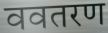
ववतरण